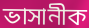
ভাসানীক